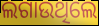
ଲଗାଉଥିଲେ